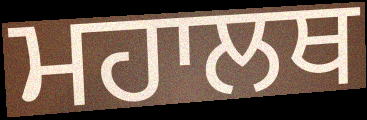
ਮਹਾਲਥ